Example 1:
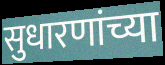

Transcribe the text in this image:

सुधारणांच्या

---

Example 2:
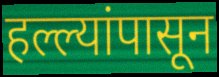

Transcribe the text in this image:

हल्ल्यांपासून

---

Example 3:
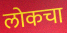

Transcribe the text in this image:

लोकचा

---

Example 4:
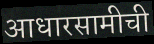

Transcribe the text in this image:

आधारसामीची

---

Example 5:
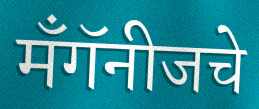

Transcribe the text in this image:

मँगॅनीजचे